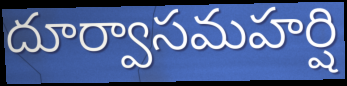
దూర్వాసమహర్షి